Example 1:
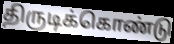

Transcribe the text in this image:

திருடிக்கொண்டு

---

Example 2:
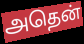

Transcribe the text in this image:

அதென்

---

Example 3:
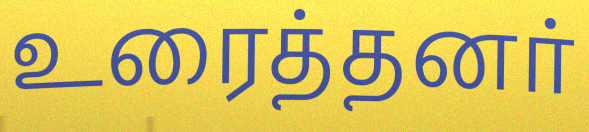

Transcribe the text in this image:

உரைத்தனர்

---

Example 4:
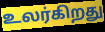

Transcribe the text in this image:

உலர்கிறது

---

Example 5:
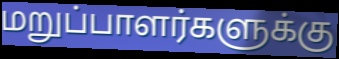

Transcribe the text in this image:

மறுப்பாளர்களுக்கு